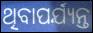
ଥିବାପର୍ଯ୍ୟନ୍ତ